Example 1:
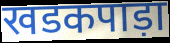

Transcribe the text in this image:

खडकपाड़ा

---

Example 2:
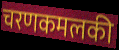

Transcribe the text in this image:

चरणकमलकी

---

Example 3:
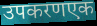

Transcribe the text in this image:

उपकरणएक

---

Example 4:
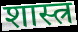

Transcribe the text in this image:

शास्‍त्र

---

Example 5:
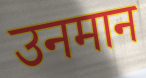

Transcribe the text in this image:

उनमान